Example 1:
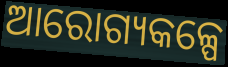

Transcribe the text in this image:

ଆରୋଗ୍ୟକଳ୍ପେ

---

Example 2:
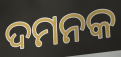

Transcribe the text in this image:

ଦମନକ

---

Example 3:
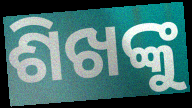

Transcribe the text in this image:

ଶିଖଙ୍କୁ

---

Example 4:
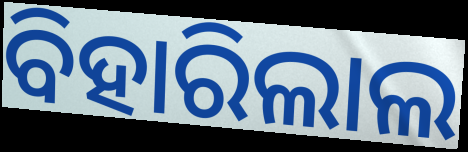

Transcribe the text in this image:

ବିହାରିଲାଲ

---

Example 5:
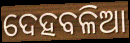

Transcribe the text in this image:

ଦେହବଳିଆ